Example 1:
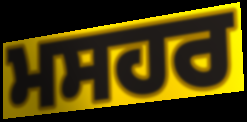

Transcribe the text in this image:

ਮਸਹਰ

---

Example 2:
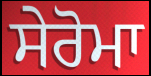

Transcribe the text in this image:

ਸੇਰੋਮਾ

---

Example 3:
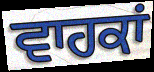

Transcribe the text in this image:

ਵਾਹਕਾਂ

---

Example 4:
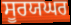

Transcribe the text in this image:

ਸੂਰਯਘਰ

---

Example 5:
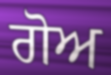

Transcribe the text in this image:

ਗੋਅ